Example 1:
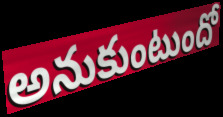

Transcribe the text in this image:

అనుకుంటుందో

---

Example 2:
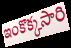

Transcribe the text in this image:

ఇంకొక్కసారి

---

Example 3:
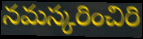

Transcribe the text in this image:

నమస్కరించిరి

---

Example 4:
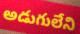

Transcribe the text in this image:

అడుగులేని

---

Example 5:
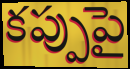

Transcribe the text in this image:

కప్పుపై